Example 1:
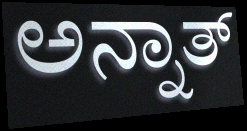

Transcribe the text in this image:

ಅನ್ನಾತ್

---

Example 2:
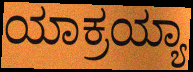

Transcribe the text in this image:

ಯಾಕ್ರಯ್ಯಾ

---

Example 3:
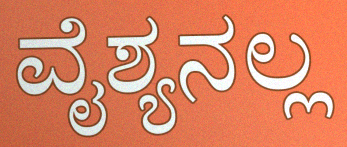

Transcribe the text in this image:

ವೈಶ್ಯನಲ್ಲ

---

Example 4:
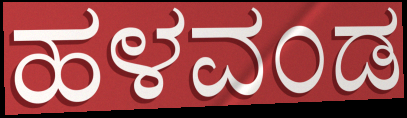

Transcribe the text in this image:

ಹಳವಂಡ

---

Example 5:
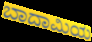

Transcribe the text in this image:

ಬಾದಾಮಿಯ